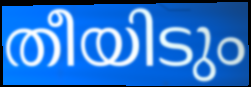
തീയിടും